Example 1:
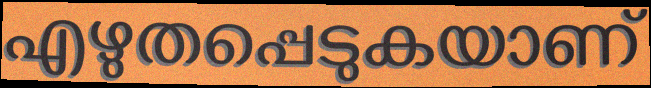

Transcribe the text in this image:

എഴുതപ്പെടുകയാണ്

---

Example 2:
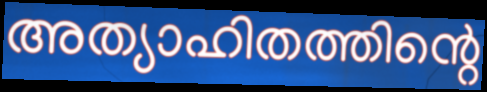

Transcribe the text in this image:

അത്യാഹിതത്തിന്റെ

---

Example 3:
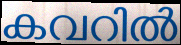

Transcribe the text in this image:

കവറിൽ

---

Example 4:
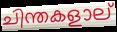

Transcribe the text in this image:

ചിന്തകളാല്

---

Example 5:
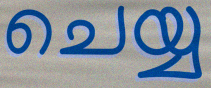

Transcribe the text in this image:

ചെയ്യ